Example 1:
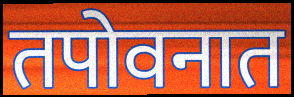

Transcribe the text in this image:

तपोवनात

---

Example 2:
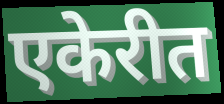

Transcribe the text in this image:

एकेरीत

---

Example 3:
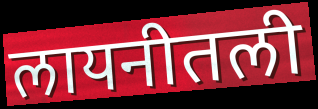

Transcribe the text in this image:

लायनीतली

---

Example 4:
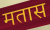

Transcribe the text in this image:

मतास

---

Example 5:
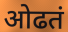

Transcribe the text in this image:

ओढतं